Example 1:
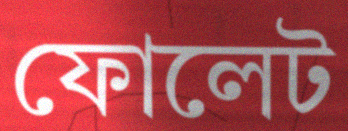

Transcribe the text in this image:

ফোলেট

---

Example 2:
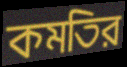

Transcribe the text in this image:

কমতির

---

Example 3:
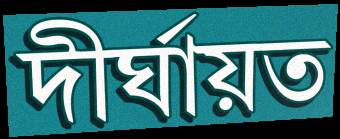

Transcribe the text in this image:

দীর্ঘায়ত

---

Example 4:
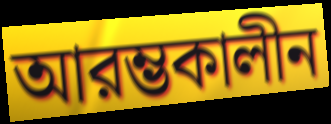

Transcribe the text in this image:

আরম্ভকালীন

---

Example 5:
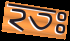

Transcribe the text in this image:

হতঃ